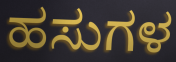
ಹಸುಗಳ